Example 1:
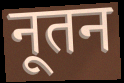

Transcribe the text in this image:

नूतन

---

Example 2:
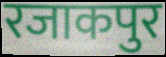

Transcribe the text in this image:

रजाकपुर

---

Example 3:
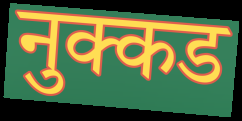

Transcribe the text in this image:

नुक्कड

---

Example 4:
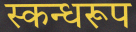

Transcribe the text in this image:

स्कन्धरूप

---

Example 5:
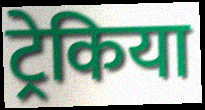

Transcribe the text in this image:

ट्रेकिया